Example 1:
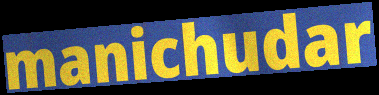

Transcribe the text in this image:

manichudar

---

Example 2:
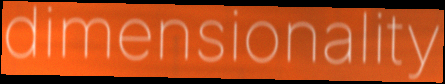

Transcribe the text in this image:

dimensionality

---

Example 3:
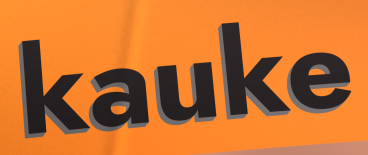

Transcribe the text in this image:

kauke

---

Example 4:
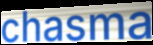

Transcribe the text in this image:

chasma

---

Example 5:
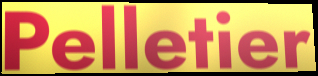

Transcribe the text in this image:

Pelletier